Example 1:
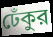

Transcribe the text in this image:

ঢেঁকুর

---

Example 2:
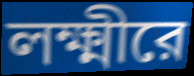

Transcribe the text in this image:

লক্ষ্মীরে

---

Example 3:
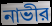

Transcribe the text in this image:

নাভীর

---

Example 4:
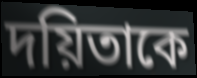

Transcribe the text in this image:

দয়িতাকে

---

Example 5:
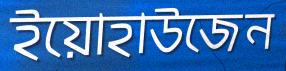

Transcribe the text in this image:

ইয়োহাউজেন